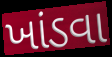
ખાંડવા